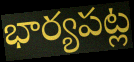
భార్యపట్ల